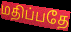
மதிப்பதே